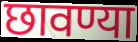
छावण्या